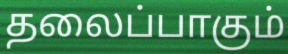
தலைப்பாகும்